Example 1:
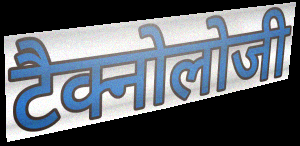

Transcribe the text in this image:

टैक्नोलोजी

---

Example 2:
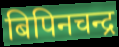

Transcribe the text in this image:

बिपिनचन्द्र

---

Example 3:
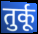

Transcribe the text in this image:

तुर्कू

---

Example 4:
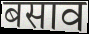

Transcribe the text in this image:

बसाव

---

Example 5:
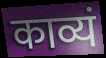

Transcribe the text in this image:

काव्यं